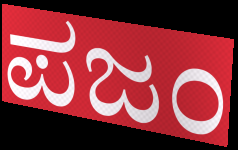
ಪಜಂ